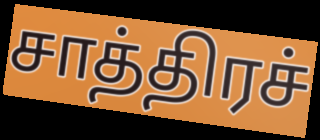
சாத்திரச்